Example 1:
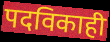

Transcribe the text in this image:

पदविकाही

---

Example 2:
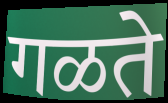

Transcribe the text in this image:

गळते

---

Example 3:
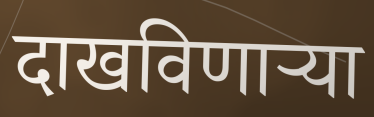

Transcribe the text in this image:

दाखविणाऱ्या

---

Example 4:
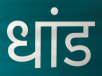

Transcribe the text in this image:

धांड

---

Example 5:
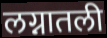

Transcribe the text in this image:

लग्नातली